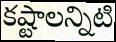
కష్టాలన్నిటి